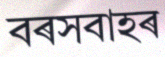
বৰসবাহৰ